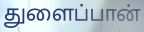
துளைப்பான்